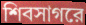
শিবসাগরে